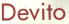
Devito